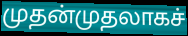
முதன்முதலாகச்